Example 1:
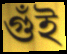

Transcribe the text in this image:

গুঁই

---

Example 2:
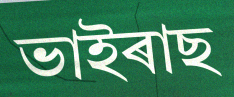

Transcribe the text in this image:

ভাইৰাছ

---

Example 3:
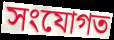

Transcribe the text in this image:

সংযোগত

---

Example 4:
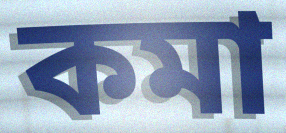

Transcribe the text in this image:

কমা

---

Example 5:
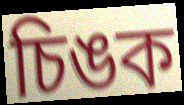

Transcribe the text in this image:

চিঙক